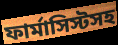
ফার্মাসিস্টসহ